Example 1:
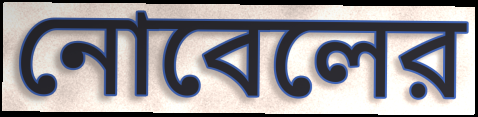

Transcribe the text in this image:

নোবেলের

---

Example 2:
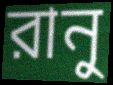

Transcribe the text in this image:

রানু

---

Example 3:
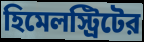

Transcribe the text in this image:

হিমেলস্ট্রিটের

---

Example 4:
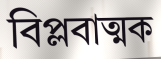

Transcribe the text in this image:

বিপ্লবাত্মক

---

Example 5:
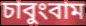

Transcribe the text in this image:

চাবুংবাম